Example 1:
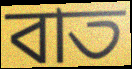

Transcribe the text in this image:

বাত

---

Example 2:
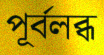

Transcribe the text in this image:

পূৰ্বলব্ধ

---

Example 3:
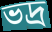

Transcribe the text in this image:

ভদ্ৰ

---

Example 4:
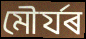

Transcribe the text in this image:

মৌৰ্যৰ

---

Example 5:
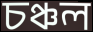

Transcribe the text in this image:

চঞ্চল